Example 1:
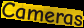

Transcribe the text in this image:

Cameras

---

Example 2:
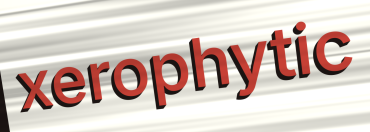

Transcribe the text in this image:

xerophytic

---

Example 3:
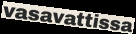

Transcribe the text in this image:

vasavattissa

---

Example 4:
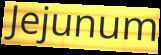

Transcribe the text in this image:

Jejunum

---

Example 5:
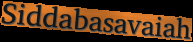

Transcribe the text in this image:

Siddabasavaiah